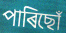
পাৰিছোঁ